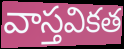
వాస్తవికత